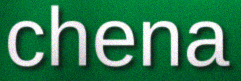
chena